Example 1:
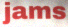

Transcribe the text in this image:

jams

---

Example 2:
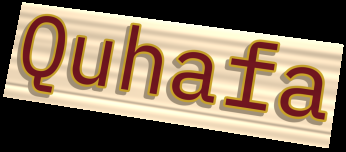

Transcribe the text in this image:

Quhafa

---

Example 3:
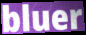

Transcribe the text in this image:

bluer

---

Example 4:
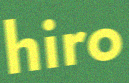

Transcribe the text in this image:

hiro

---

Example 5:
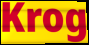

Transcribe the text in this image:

Krog